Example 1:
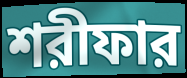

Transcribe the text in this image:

শরীফার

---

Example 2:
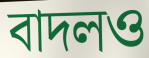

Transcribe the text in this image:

বাদলও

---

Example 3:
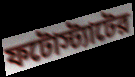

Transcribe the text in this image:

ফটোস্ট্যাটের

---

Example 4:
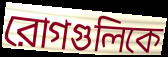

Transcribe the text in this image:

রোগগুলিকে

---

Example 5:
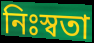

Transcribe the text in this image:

নিঃস্বতা